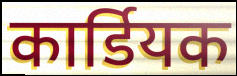
कार्डियक